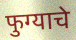
फुग्याचे